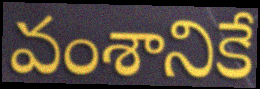
వంశానికే